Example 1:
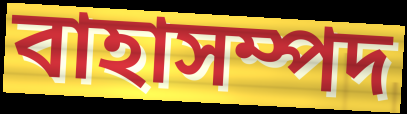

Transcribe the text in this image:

বাহাসম্পদ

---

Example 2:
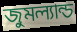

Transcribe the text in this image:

জুমল্যান্ড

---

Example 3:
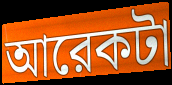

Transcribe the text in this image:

আরেকটা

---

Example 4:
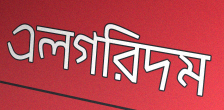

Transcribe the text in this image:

এলগরিদম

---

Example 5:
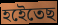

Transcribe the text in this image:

হইেতেছ